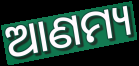
ଆଣମ୍ୟ